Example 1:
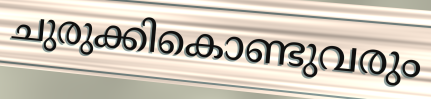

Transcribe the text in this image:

ചുരുക്കികൊണ്ടുവരും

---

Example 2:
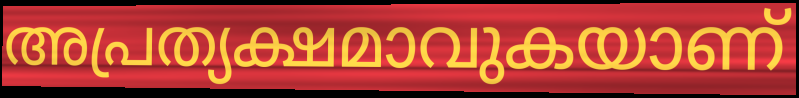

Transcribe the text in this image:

അപ്രത്യക്ഷമാവുകയാണ്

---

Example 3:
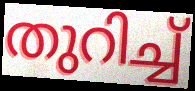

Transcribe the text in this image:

തുറിച്ച്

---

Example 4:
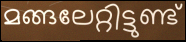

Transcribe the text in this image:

മങ്ങലേറ്റിട്ടുണ്ട്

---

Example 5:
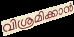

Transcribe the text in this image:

വിശ്രമിക്കാൻ